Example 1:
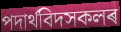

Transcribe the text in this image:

পদাৰ্থবিদসকলৰ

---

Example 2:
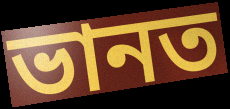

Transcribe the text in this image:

ভানত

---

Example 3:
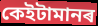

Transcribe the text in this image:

কেইটামানৰ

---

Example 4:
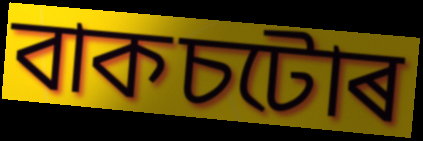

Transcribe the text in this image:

বাকচটোৰ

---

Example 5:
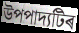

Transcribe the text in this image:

উপপাদ্যটিৰ